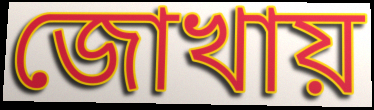
জোখায়